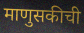
माणुसकीची